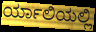
ರ್ಯಾಲಿಯಲ್ಲಿ